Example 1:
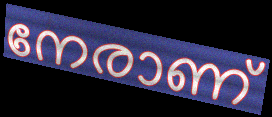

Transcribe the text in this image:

നേരാണ്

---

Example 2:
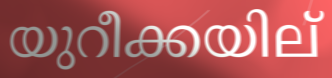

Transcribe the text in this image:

യുറീക്കയില്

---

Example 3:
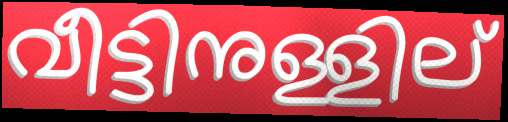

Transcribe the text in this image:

വീട്ടിനുള്ളില്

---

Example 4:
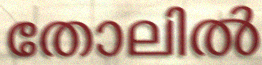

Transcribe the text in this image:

തോലിൽ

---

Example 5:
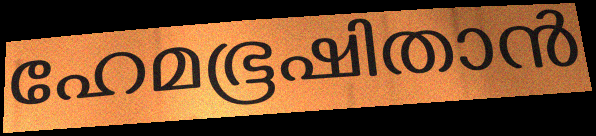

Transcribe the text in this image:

ഹേമഭൂഷിതാൻ